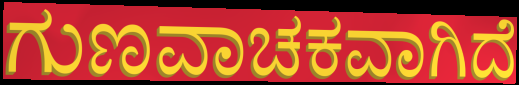
ಗುಣವಾಚಕವಾಗಿದೆ